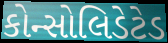
કોન્સોલિડેટેડ